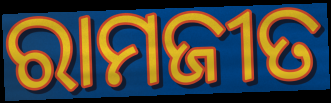
ରାମଜୀତ